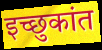
इच्छुकांत